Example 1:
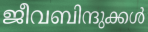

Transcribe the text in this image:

ജീവബിന്ദുക്കൾ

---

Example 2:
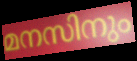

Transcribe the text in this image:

മനസിനും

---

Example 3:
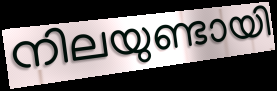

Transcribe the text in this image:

നിലയുണ്ടായി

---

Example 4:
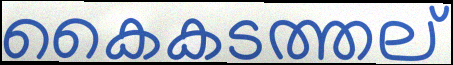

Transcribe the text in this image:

കൈകടത്തല്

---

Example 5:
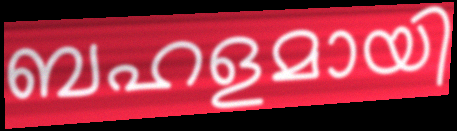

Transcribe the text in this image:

ബഹളമായി